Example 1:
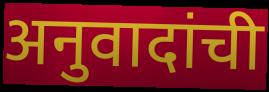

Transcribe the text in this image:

अनुवादांची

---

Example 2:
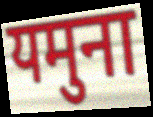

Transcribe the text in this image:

यमुना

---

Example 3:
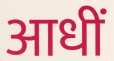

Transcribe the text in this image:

आधीं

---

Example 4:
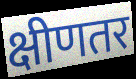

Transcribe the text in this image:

क्षीणतर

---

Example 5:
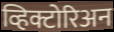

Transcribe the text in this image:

व्हिक्टोरिअन